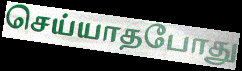
செய்யாதபோது